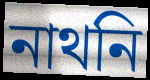
নাথনি